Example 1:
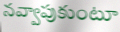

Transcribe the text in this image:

నవ్వాపుకుంటూ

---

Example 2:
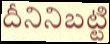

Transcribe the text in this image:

దీనినిబట్టి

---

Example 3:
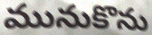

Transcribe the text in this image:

మునుకొను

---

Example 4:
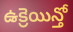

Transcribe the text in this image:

ఉక్రెయిన్తో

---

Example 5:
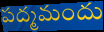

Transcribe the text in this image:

పద్మమందు